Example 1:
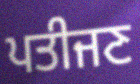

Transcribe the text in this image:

ਪਤੀਜਣ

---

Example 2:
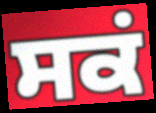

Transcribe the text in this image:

ਸਕਂ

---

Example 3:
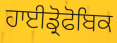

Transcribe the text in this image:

ਹਾਈਡ੍ਰੋਫੋਬਿਕ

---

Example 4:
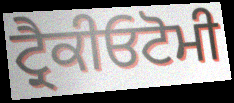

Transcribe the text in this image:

ਟ੍ਰੈਕੀਓਟੋਮੀ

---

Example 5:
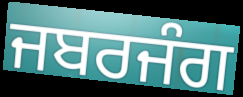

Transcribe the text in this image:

ਜਬਰਜੰਗ